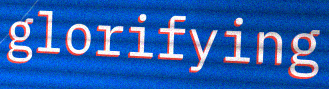
glorifying